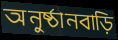
অনুষ্ঠানবাড়ি